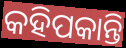
କହିପକାନ୍ତି